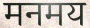
मनमय